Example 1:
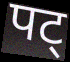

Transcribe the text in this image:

पट्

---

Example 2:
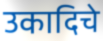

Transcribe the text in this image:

उकादिचे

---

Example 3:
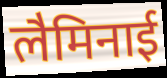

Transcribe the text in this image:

लैमिनाई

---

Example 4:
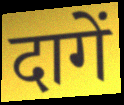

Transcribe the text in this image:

दागें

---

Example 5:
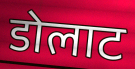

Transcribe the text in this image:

डोलाट